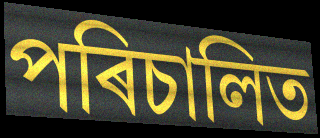
পৰিচালিত